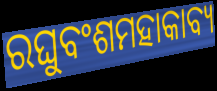
ରଘୁବଂଶମହାକାବ୍ୟ